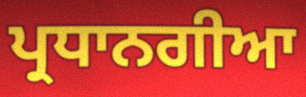
ਪ੍ਰਧਾਨਗੀਆ